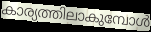
കാര്യത്തിലാകുമ്പോൾ